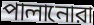
পালানোরা